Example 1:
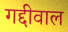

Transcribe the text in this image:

गद्दीवाल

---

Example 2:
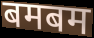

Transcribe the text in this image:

बमबम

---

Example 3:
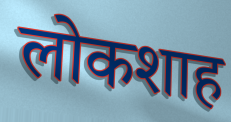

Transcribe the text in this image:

लोकशाह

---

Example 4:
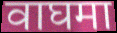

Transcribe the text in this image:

वाघमा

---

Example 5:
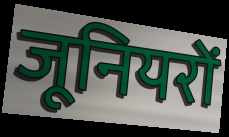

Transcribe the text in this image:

जूनियरों